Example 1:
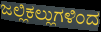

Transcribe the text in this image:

ಜಲ್ಲಿಕಲ್ಲುಗಳಿಂದ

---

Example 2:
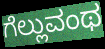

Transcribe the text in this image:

ಗೆಲ್ಲುವಂಥ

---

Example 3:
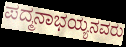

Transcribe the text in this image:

ಪದ್ಮನಾಭಯ್ಯನವರು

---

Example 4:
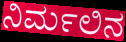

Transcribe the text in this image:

ನಿರ್ಮಲಿನ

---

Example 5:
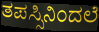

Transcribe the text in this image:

ತಪಸ್ಸಿನಿಂದಲೆ